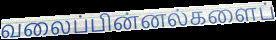
வலைப்பின்னல்களைப்